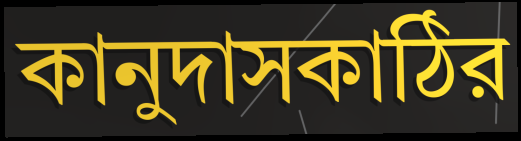
কানুদাসকাঠির